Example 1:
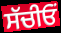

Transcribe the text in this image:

ਸੱਚੀਓਂ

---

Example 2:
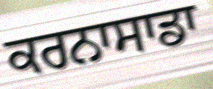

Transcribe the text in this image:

ਕਰਨਾਸਾਡਾ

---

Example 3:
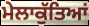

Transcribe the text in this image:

ਮੇਲਾਕੁੱਤਿਆਂ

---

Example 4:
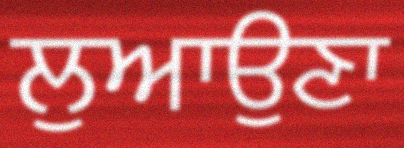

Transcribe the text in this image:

ਲੁਆਉਣਾ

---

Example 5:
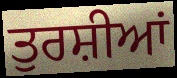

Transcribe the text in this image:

ਤੁਰਸ਼ੀਆਂ